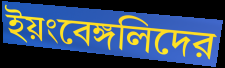
ইয়ংবেঙ্গলিদের